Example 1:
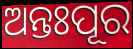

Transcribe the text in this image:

ଅନ୍ତଃପୂର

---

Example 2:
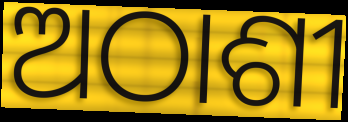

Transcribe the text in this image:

ଅଠାଶୀ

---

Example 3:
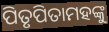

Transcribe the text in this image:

ପିତୃପିତାମହଙ୍କୁ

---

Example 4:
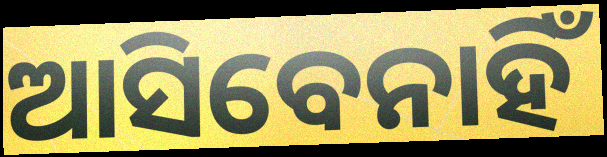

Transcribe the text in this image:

ଆସିବେନାହିଁ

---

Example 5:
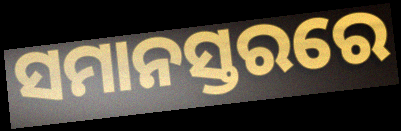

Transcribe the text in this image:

ସମାନସ୍ତରରେ